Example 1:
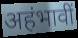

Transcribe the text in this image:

अहंभावीं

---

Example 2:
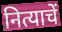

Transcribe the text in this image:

नित्याचें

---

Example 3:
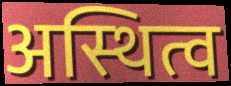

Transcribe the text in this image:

अस्थित्व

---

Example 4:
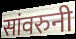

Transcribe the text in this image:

सांवरुनी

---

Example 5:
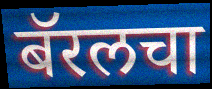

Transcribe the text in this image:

बॅरलचा